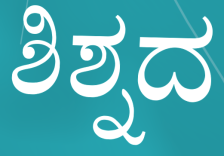
ಶಿಶ್ನದ